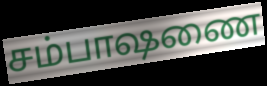
சம்பாஷணை